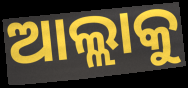
ଆଲ୍ଲାକୁ